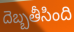
దెబ్బతీసింది